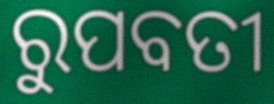
ରୁପବତୀ